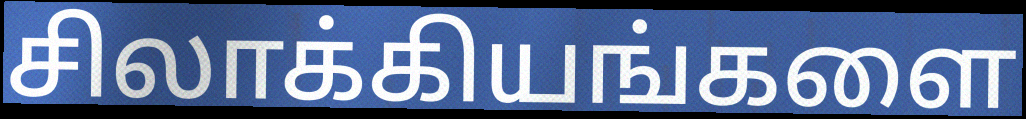
சிலாக்கியங்களை